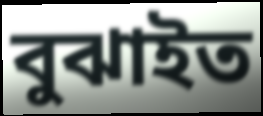
বুঝাইত